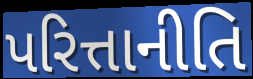
પરિત્તાનીતિ